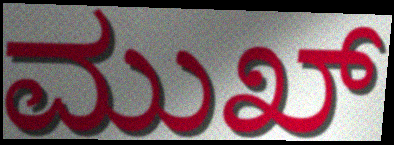
ಮುಖ್